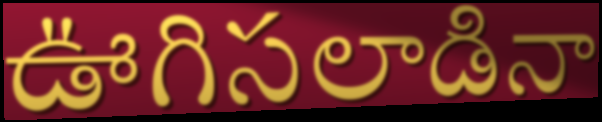
ఊగిసలాడినా